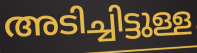
അടിച്ചിട്ടുള്ള